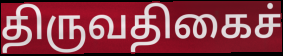
திருவதிகைச்